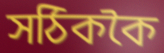
সঠিককৈ